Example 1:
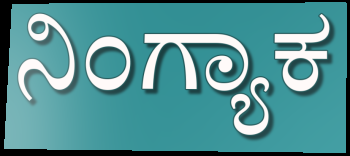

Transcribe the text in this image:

ನಿಂಗ್ಯಾಕ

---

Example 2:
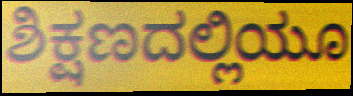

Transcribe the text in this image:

ಶಿಕ್ಷಣದಲ್ಲಿಯೂ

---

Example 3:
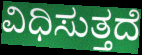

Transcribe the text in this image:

ವಿಧಿಸುತ್ತದೆ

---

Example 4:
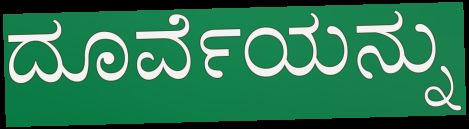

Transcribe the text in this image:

ದೂರ್ವೆಯನ್ನು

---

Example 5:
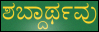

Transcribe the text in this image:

ಶಬ್ದಾರ್ಥವು